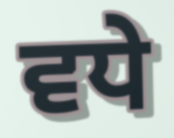
ਵਧੇ